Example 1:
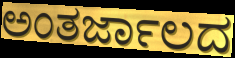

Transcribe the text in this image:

ಅಂತರ್ಜಾಲದ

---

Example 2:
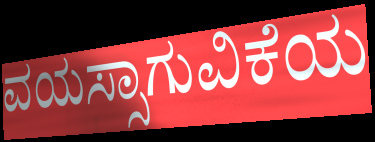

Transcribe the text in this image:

ವಯಸ್ಸಾಗುವಿಕೆಯ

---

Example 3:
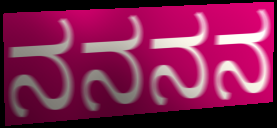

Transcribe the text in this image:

ನನನನ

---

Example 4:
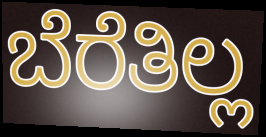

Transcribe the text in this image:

ಬೆರೆತಿಲ್ಲ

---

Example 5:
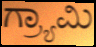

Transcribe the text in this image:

ಗ್ರ್ಯಾಮಿ